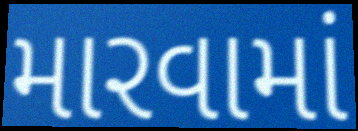
મારવામાં